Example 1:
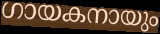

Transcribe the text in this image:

ഗായകനായും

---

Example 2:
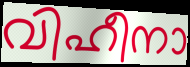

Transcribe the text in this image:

വിഹീനാ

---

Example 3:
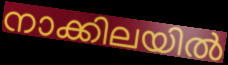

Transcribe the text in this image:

നാക്കിലയിൽ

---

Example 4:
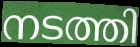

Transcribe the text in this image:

നടത്തി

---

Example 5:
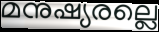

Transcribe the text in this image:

മനുഷ്യരല്ലെ